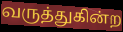
வருத்துகின்ற